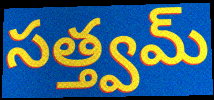
సత్త్వమ్